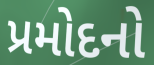
પ્રમોદનો